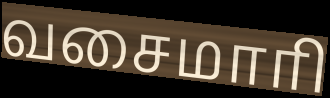
வசைமாரி